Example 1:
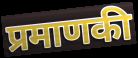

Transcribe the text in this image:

प्रमाणकी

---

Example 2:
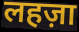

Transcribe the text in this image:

लहज़ा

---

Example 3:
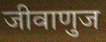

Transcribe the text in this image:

जीवाणुज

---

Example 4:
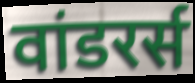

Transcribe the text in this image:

वांडरर्स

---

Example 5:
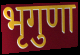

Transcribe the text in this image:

भृगुणा